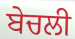
ਬੇਚਲੀ